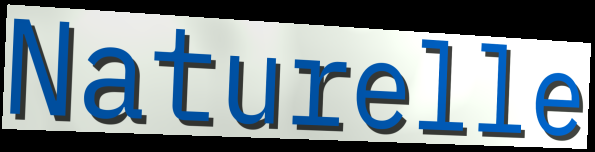
Naturelle